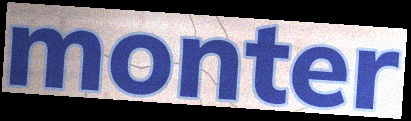
monter